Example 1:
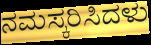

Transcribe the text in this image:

ನಮಸ್ಕರಿಸಿದಳು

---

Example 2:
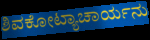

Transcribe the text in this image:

ಶಿವಕೋಟ್ಯಾಚಾರ್ಯನು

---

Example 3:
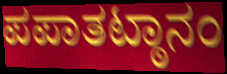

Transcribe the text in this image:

ಪಪಾತಟ್ಠಾನಂ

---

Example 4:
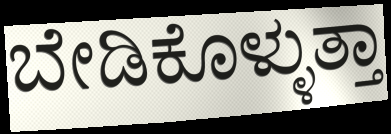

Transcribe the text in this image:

ಬೇಡಿಕೊಳ್ಳುತ್ತಾ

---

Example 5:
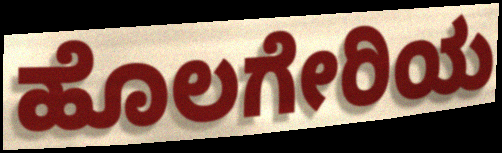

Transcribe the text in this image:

ಹೊಲಗೇರಿಯ